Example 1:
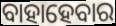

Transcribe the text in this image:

ବାହାହେବାର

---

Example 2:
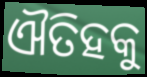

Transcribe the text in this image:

ଐତିହକୁ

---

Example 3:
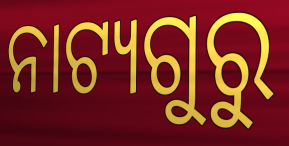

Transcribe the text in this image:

ନାଟ୍ୟଗୁରୁ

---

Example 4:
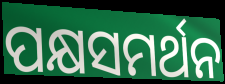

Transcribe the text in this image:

ପକ୍ଷସମର୍ଥନ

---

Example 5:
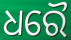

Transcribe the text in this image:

ଧରୈ